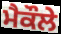
ਮੈਕੌਲੇ